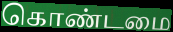
கொண்டமை